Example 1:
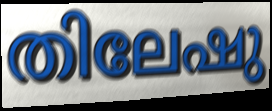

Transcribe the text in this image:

തിലേഷു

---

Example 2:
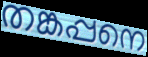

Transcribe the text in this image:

തങ്കപ്പനെ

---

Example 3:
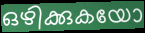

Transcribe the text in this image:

ഒഴിക്കുകയോ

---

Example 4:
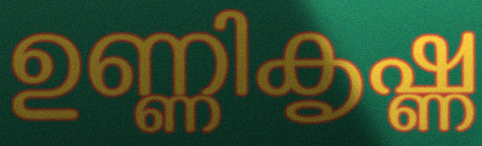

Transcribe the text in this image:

ഉണ്ണികൃഷ്ണ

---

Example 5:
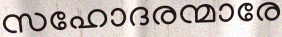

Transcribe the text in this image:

സഹോദരന്മാരേ